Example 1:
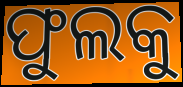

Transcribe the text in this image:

ଫୁଲକୁ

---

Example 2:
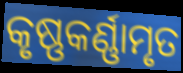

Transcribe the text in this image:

କୃଷ୍ଣକର୍ଣ୍ଣାମୃତ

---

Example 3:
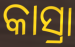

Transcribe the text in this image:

କାସ୍ରା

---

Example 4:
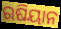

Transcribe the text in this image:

ଋଷିୟାନ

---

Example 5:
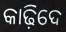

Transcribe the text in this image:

କାଢ଼ିଦେ